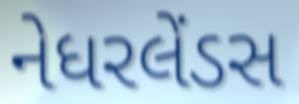
નેધરલેંડસ